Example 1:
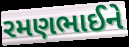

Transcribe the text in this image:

રમણભાઈને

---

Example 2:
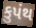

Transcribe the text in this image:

કુપંથ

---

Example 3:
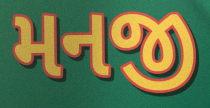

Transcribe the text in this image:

મનજી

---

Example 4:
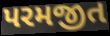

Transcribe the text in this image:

પરમજીત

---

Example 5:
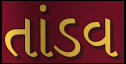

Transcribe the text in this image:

તાંડવ